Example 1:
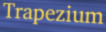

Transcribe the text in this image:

Trapezium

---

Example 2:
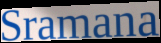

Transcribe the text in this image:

Sramana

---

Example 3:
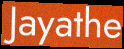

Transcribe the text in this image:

Jayathe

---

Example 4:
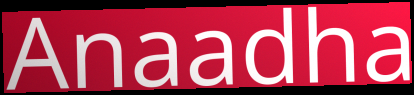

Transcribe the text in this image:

Anaadha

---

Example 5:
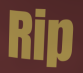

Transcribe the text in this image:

Rip